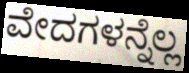
ವೇದಗಳನ್ನೆಲ್ಲ